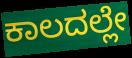
ಕಾಲದಲ್ಲೇ